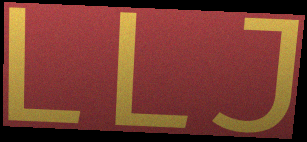
LLJ